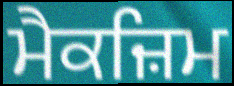
ਮੈਕਜ਼ਿਮ